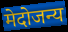
मेदोजन्य